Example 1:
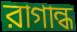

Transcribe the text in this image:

রাগান্ধ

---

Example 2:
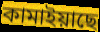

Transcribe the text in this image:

কামাইয়াছে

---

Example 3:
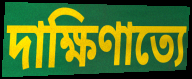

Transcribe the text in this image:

দাক্ষিণাত্যে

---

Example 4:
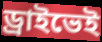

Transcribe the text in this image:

ড্রাইভেই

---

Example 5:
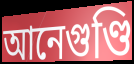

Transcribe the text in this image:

আনেগুণ্ডি